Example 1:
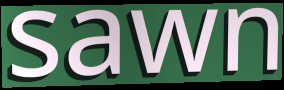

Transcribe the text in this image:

sawn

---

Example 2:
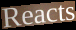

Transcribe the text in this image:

Reacts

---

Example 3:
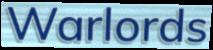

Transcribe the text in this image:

Warlords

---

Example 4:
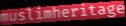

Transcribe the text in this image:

muslimheritage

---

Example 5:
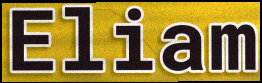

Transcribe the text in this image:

Eliam